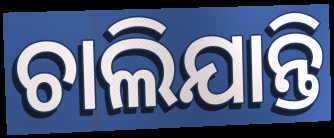
ଚାଲିଯାନ୍ତି